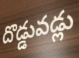
దొడ్డువడ్లు